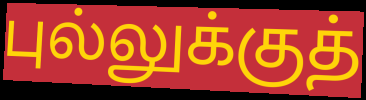
புல்லுக்குத்